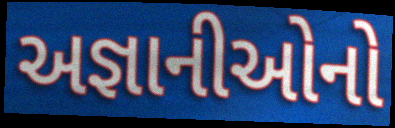
અજ્ઞાનીઓનો